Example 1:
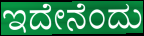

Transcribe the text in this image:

ಇದೇನೆಂದು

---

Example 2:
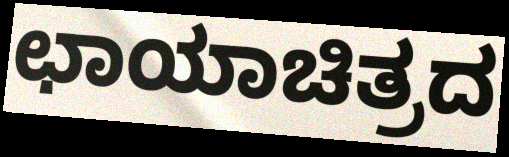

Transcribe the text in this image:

ಛಾಯಾಚಿತ್ರದ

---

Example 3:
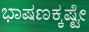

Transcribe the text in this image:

ಭಾಷಣಕ್ಕಷ್ಟೇ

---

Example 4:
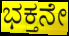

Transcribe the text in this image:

ಭಕ್ತನೇ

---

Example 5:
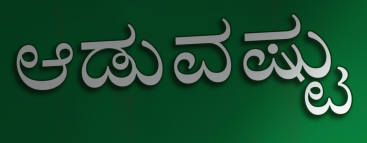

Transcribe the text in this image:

ಆಡುವಷ್ಟು